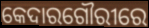
କେଦାରଗୌରୀରେ